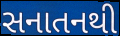
સનાતનથી